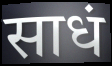
साधं